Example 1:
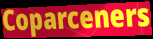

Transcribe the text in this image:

Coparceners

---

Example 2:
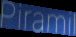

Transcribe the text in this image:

Piramil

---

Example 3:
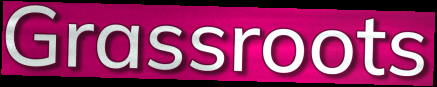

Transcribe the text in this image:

Grassroots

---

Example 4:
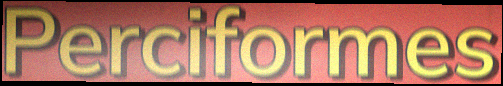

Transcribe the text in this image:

Perciformes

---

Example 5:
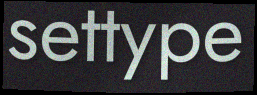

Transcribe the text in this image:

settype